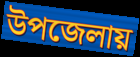
উপজেলায়